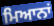
ਮਿਆਨਾਂ